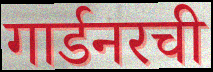
गार्डनरची